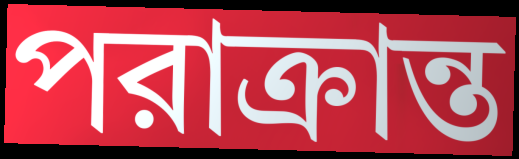
পরাক্রান্ত